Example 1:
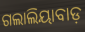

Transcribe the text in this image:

ଗଲାଲିୟାବାଡ଼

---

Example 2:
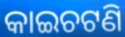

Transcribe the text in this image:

କାଇଚଟଣି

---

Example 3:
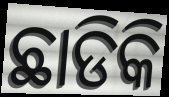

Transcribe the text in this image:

ଛାଡିକି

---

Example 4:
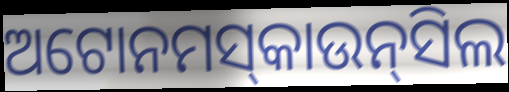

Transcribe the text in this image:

ଅଟୋନମସ୍‌କାଉନ୍‌ସିଲ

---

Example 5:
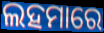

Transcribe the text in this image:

ଲହମାରେ